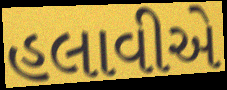
હલાવીએ